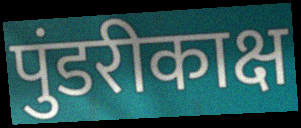
पुंडरीकाक्ष